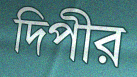
দিপীর